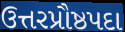
ઉત્તરપ્રૌષ્ઠપદા